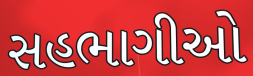
સહભાગીઓ